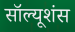
सॉल्यूशंस